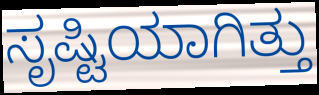
ಸೃಷ್ಟಿಯಾಗಿತ್ತು